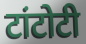
टांटोटी